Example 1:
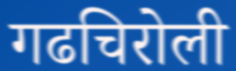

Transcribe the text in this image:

गढचिरोली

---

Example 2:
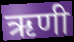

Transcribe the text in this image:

ऋणी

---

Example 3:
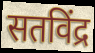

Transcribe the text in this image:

सतविंद्र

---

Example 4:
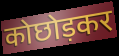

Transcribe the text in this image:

कोछोड़कर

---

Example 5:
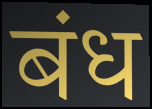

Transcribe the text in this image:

बंध